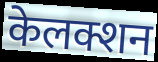
केलक्शन